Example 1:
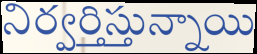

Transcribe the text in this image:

నిర్వర్తిస్తున్నాయి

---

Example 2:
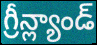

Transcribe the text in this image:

గ్రీన్ల్యాండ్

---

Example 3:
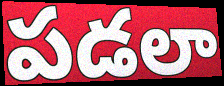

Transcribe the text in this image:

పడలా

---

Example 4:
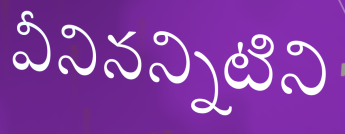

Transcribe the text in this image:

వీనినన్నిటిని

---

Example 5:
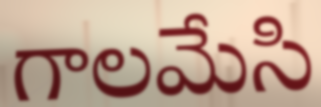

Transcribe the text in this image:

గాలమేసి